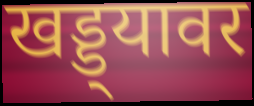
खड्ड्यावर